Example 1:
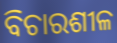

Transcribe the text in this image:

ବିଚାରଶୀଳ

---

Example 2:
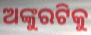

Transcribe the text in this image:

ଅଙ୍କୁରଟିକୁ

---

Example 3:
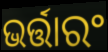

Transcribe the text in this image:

ଭର୍ତ୍ତାରଂ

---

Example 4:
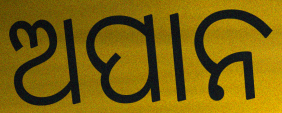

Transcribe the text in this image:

ଅପାନ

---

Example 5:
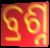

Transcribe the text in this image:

ବ୍ରଶ୍ନ